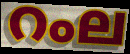
റംല